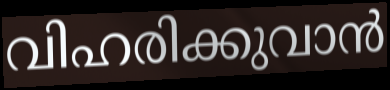
വിഹരിക്കുവാൻ